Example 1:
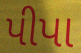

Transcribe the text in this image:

પીપા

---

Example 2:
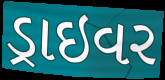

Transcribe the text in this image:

ડ્રાઇવર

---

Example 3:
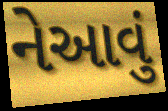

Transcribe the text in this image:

નેઆવું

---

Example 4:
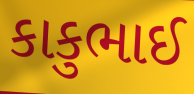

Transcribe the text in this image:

કાકુભાઈ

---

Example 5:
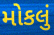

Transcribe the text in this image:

મોકલું